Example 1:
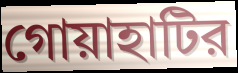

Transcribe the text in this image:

গোয়াহাটির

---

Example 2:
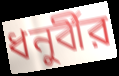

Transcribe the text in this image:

ধনুর্বীর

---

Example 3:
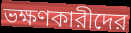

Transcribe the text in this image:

ভক্ষণকারীদের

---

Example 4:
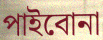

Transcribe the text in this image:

পাইবোনা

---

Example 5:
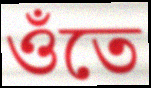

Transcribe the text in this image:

ওঁতে